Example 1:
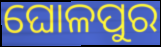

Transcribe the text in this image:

ଘୋଳପୁର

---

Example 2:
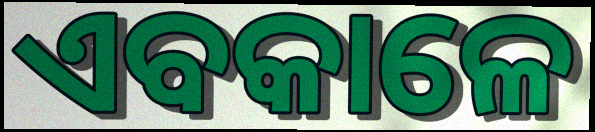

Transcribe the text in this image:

ଏବକାଳେ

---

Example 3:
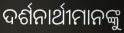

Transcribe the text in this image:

ଦର୍ଶନାର୍ଥୀମାନଙ୍କୁ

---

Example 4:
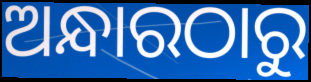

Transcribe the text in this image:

ଅନ୍ଧାରଠାରୁ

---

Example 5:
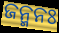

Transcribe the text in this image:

ଜନ୍ମନଃ